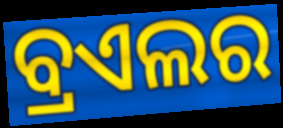
ବ୍ରଏଲର